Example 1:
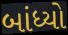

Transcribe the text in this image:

બાંધ્યો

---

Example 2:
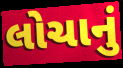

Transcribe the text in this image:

લોચાનું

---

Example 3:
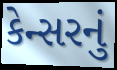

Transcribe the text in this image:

કેન્સરનું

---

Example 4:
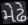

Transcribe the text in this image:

મેઢે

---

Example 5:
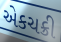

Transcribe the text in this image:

એકચક્રી